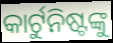
କାର୍ଟୁନିଷ୍ଟଙ୍କୁ